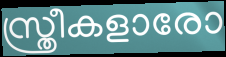
സ്ത്രീകളാരോ